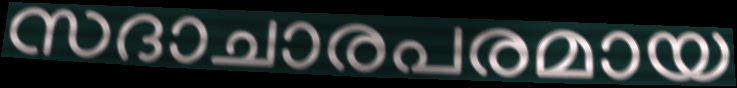
സദാചാരപരമായ